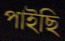
পাইছি